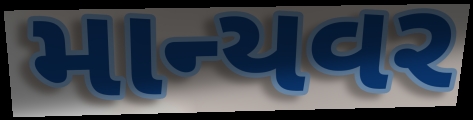
માન્યવર